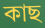
কাছ